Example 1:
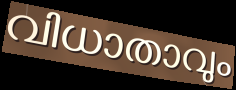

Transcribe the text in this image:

വിധാതാവും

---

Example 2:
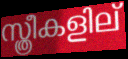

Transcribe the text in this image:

സ്ത്രീകളില്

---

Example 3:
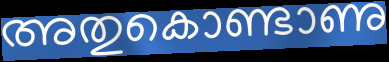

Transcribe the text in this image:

അതുകൊണ്ടാണു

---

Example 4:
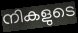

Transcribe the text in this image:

നികളുടെ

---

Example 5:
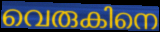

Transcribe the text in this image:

വെരുകിനെ